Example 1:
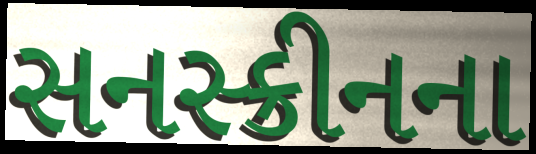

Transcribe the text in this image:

સનસ્ક્રીનના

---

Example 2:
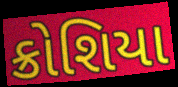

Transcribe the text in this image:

ક્રોશિયા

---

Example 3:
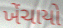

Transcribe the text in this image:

ખેંચાયો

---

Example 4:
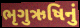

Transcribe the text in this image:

ભૃગુઋષિનું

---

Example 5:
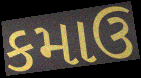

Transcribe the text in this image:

કમાઉ